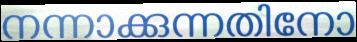
നന്നാക്കുന്നതിനോ